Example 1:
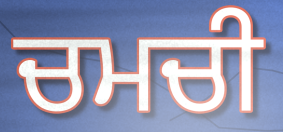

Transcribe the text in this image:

ਚਮਚੀ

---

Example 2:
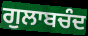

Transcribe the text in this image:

ਗੁਲਾਬਚੰਦ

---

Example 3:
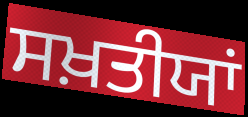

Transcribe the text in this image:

ਸਖ਼ਤੀਯਾਂ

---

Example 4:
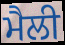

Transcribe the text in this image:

ਮੈਲੀ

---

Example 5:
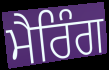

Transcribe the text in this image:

ਮੈਰਿੰਗ